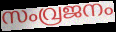
സംവ്രജനം